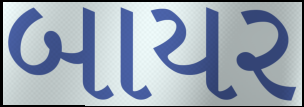
બાયર